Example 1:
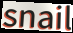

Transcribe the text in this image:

snail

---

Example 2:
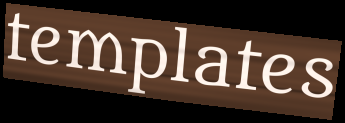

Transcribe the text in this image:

templates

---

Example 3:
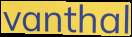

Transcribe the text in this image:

vanthal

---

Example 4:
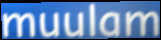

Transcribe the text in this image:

muulam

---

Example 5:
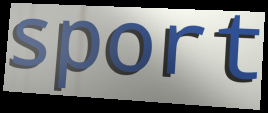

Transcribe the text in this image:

sport